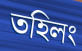
তহিলং